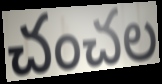
చంచల